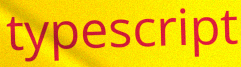
typescript